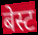
बेस्ट